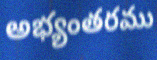
అభ్యంతరము